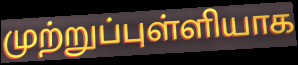
முற்றுப்புள்ளியாக